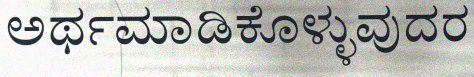
ಅರ್ಥಮಾಡಿಕೊಳ್ಳುವುದರ